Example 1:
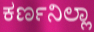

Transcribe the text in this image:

ಕರ್ಣನಿಲ್ಲಾ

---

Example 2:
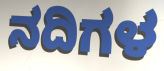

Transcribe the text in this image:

ನದಿಗಳ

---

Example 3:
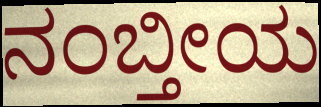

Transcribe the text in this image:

ನಂಬ್ತೀಯ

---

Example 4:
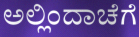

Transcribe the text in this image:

ಅಲ್ಲಿಂದಾಚೆಗೆ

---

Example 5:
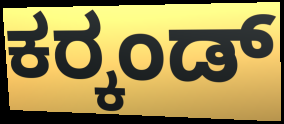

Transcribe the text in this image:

ಕರ್‍ಕಂಡ್